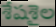
శేషశైల